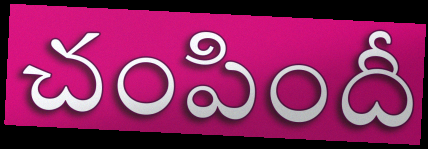
చంపిందీ